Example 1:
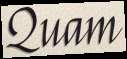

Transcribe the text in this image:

Quam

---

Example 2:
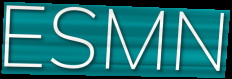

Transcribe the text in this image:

ESMN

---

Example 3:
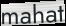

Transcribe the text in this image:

mahat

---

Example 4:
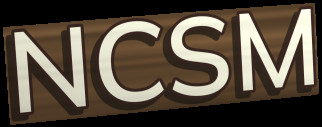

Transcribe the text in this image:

NCSM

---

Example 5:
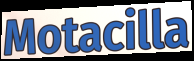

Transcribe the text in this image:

Motacilla